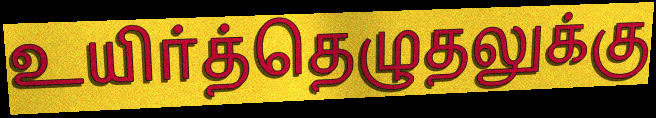
உயிர்த்தெழுதலுக்கு